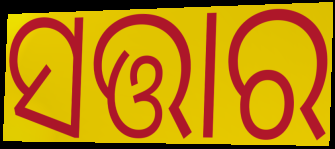
ସତ୍ତାର